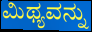
ಮಿಥ್ಯವನ್ನು